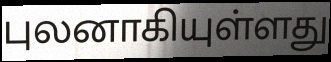
புலனாகியுள்ளது